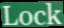
Lock